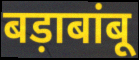
बड़ाबांबू